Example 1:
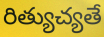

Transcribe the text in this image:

రిత్యుచ్యతే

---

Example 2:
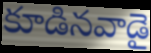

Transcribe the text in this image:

కూడినవాడై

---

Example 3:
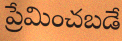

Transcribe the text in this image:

ప్రేమించబడే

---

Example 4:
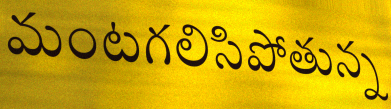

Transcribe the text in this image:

మంటగలిసిపోతున్న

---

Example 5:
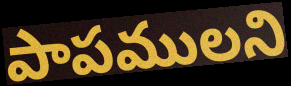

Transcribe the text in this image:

పాపములని